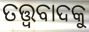
ତତ୍ତ୍ୱବାଦକୁ